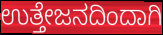
ಉತ್ತೇಜನದಿಂದಾಗಿ